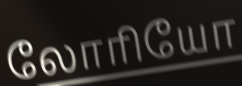
லோரியோ